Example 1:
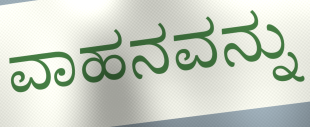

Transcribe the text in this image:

ವಾಹನವನ್ನು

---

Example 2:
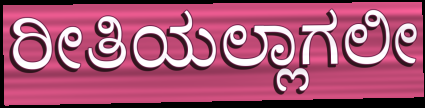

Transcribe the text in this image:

ರೀತಿಯಲ್ಲಾಗಲೀ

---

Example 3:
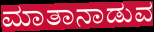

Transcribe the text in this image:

ಮಾತಾನಾಡುವ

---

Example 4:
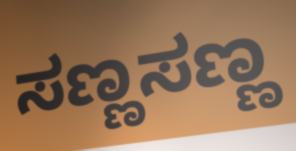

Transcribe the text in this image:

ಸಣ್ಣಸಣ್ಣ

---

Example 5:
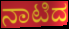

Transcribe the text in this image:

ನಾಟಿದ